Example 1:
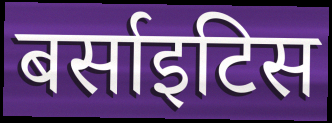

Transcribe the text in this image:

बर्साइटिस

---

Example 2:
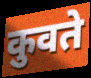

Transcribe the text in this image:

कुवते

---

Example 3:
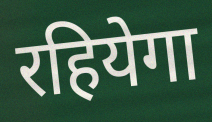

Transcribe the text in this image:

रहियेगा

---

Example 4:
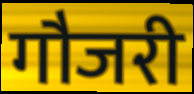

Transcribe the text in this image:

गौजरी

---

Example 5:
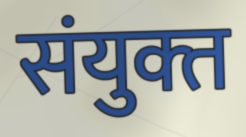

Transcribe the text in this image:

संयुक्‍त